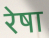
रेषा